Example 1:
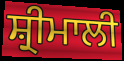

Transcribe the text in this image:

ਸ਼੍ਰੀਮਾਲੀ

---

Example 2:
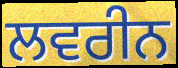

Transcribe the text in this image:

ਲਵਰੀਨ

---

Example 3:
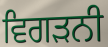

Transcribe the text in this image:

ਵਿਗੜਨੀ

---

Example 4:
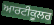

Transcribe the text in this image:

ਆਰਟੀਕੂਲਰ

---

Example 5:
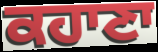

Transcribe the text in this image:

ਕਹਾਣਾ